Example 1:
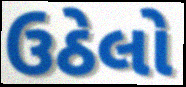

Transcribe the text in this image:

ઉઠેલો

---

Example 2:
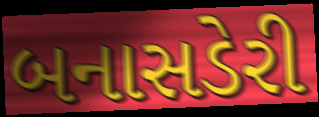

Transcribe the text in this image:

બનાસડેરી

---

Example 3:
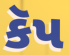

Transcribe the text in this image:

કૅપ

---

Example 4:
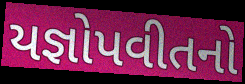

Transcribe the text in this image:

યજ્ઞોપવીતનો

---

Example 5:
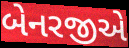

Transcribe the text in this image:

બેનરજીએ